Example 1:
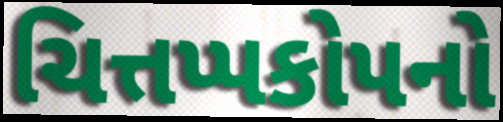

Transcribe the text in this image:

ચિત્તપ્પકોપનો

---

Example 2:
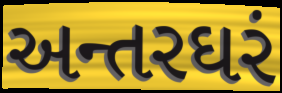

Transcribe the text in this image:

અન્તરઘરં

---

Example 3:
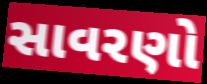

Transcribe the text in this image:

સાવરણો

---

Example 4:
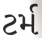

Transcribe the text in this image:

ટર્મ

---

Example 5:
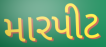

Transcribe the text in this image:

મારપીટ